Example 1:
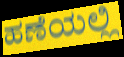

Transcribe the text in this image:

ಹಣೆಯಲ್ಲಿ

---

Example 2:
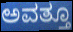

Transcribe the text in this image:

ಅವತ್ತೂ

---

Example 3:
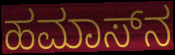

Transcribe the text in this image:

ಹಮಾಸ್‌ನ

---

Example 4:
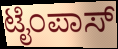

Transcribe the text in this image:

ಟೈಂಪಾಸ್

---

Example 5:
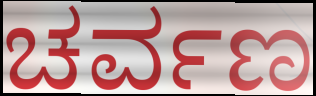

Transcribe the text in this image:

ಚರ್ವಣ